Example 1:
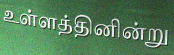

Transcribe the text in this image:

உள்ளத்தினின்று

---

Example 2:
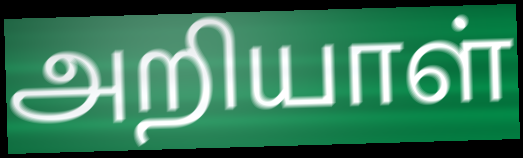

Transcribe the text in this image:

அறியாள்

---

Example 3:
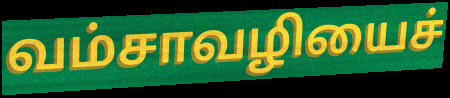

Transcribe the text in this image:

வம்சாவழியைச்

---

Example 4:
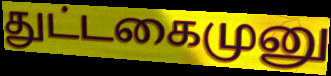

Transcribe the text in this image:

துட்டகைமுனு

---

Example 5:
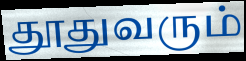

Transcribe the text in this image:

தூதுவரும்